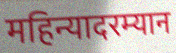
महिन्यादरम्यान